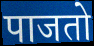
पाजतो